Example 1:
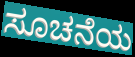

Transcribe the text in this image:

ಸೂಚನೆಯ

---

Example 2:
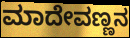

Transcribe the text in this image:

ಮಾದೇವಣ್ಣನ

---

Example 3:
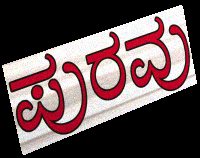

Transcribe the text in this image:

ಪುರವು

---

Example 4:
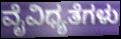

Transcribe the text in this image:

ವೈವಿಧ್ಯತೆಗಳು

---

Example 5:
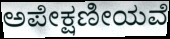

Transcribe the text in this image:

ಅಪೇಕ್ಷಣೀಯವೆ